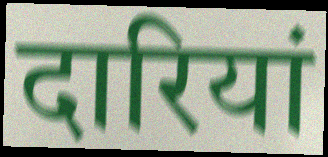
दारियां